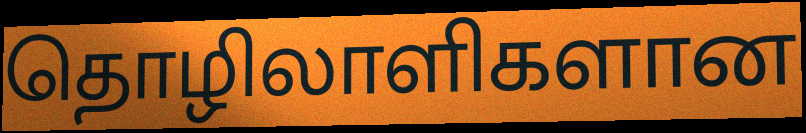
தொழிலாளிகளான